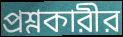
প্রশ্নকারীর